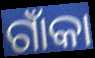
ଗାଁକା